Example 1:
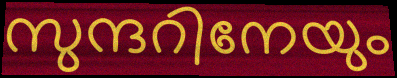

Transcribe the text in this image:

സുന്ദറിനേയും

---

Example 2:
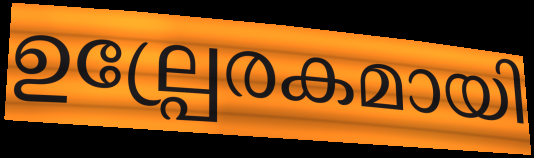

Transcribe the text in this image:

ഉല്പ്രേരകമായി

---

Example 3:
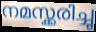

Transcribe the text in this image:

നമസ്ക്കരിച്ചു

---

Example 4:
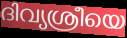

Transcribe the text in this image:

ദിവ്യശ്രീയെ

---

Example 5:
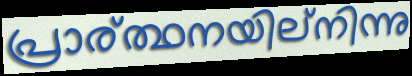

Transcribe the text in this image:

പ്രാര്ത്ഥനയില്നിന്നു